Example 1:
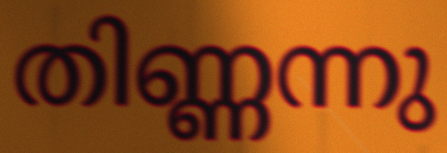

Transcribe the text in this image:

തിണ്ണന്നു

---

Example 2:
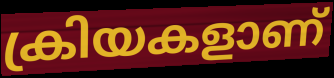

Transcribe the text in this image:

ക്രിയകളാണ്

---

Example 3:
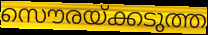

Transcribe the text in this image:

സൌരയ്ക്കടുത്ത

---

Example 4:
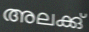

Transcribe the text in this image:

അലക്കു്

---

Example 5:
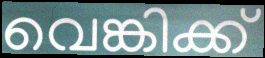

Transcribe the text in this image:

വെങ്കിക്ക്